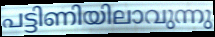
പട്ടിണിയിലാവുന്നു